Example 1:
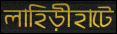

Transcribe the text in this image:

লাহিড়ীহাটে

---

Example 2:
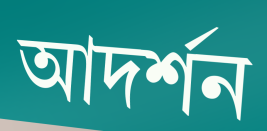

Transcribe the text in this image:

আদর্শন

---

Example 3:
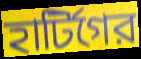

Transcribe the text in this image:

হার্টিগের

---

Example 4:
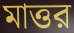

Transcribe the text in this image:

মাত্তর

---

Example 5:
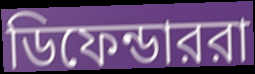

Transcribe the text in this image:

ডিফেন্ডাররা